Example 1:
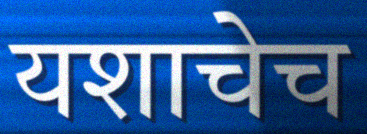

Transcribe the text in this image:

यशाचेच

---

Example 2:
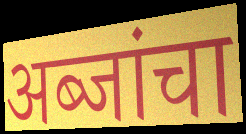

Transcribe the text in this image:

अब्जांचा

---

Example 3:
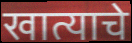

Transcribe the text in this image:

खात्याचे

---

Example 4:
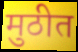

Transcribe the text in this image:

मुठीत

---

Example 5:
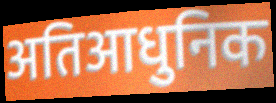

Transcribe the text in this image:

अतिआधुनिक